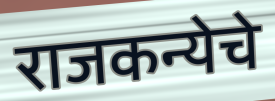
राजकन्येचे